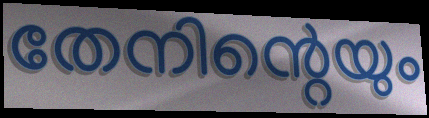
തേനിന്റെയും